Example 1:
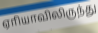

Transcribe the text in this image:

ஏரியாவிலிருந்து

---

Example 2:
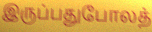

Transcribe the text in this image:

இருப்பதுபோலத்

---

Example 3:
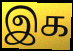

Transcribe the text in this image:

இக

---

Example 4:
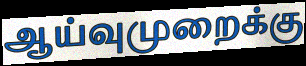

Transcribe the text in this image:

ஆய்வுமுறைக்கு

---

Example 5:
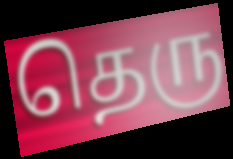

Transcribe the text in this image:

தெரு